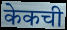
केकची